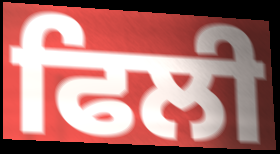
ਫਿਲੀ